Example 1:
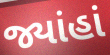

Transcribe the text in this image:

જ્યાંહાં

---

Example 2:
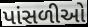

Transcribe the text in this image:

પાંસળીઓ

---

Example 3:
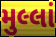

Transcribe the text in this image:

મુલ્લાં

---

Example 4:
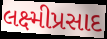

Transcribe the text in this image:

લક્ષ્મીપ્રસાદ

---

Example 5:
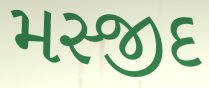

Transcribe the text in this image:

મસ્જીદ